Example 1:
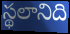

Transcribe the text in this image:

స్థలానిది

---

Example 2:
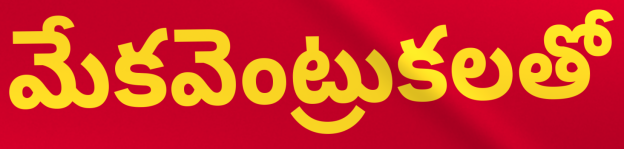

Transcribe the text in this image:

మేకవెంట్రుకలతో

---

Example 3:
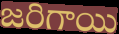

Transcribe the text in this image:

జరిగాయి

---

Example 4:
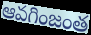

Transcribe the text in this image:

ఆవగింజంత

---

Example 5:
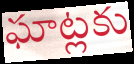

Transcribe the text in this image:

ఘాట్లకు